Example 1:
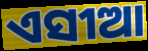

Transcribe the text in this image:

ଏସୀଆ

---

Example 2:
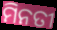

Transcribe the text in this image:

ମିନତୀ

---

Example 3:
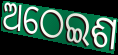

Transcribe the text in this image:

ଅଠେଇଶ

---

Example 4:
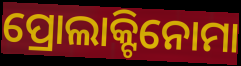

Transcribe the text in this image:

ପ୍ରୋଲାକ୍ଟିନୋମା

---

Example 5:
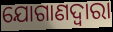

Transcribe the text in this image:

ଯୋଗାଣଦ୍ଵାରା